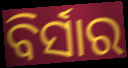
ବିର୍ସାର